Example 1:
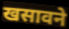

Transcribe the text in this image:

खसावने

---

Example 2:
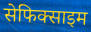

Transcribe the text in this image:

सेफिक्साइम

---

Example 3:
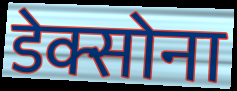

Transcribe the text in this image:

डेक्सोना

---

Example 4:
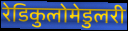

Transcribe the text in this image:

रेडिकुलोमेडुलरी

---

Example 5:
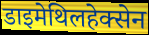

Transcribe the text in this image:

डाइमेथिलहेक्सेन